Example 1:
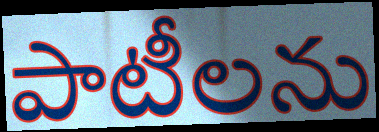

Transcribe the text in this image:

పాటీలను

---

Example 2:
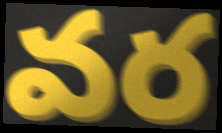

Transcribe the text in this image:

వర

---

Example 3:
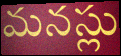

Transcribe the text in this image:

మనస్లు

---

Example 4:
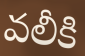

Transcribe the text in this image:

వలీకి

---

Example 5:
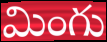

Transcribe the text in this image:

మింగు